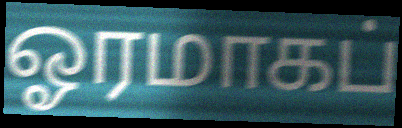
ஓரமாகப்